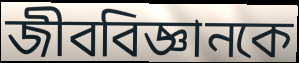
জীববিজ্ঞানকে